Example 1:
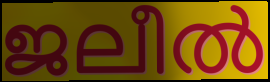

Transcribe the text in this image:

ജലീൽ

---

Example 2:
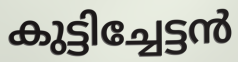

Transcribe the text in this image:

കുട്ടിച്ചേട്ടൻ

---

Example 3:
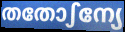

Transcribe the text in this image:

തതോഽന്യേ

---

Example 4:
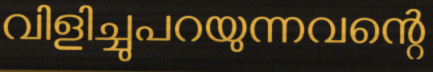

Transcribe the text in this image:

വിളിച്ചുപറയുന്നവന്റെ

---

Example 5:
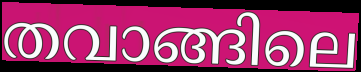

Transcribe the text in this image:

തവാങ്ങിലെ